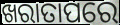
ଖରାତାପରେ